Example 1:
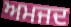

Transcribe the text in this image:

ਅਮਜਦ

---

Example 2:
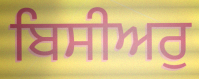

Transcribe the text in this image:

ਬਿਸੀਅਰੁ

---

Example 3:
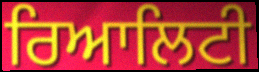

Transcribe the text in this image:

ਰਿਆਲਿਟੀ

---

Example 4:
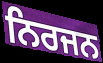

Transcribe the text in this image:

ਨਿਰਜਨ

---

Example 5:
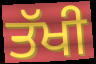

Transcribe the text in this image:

ਤੱਖੀ